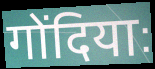
गोंदियाः